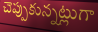
చెప్పుకున్నట్లుగా